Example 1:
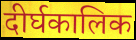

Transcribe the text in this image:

दीर्घकालिक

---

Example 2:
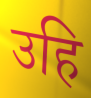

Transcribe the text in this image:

उहि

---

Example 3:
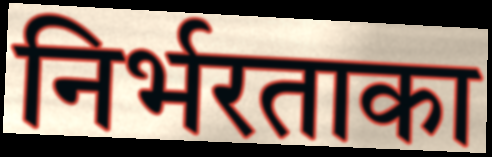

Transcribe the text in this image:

निर्भरताका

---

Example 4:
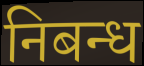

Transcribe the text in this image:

निबन्ध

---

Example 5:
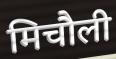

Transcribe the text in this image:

मिचौली